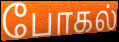
போகல்